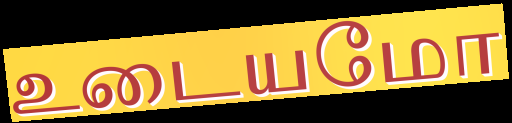
உடையமோ